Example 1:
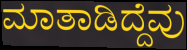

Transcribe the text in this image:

ಮಾತಾಡಿದ್ದೆವು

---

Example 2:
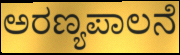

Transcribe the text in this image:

ಅರಣ್ಯಪಾಲನೆ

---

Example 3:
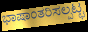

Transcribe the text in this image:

ಭಾಷಾಂತರಿಸಲ್ಪಟ್ಟ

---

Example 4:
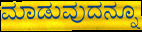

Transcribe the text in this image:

ಮಾಡುವುದನ್ನೂ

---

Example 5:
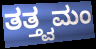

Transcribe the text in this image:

ತತ್ತ್ವಮಂ